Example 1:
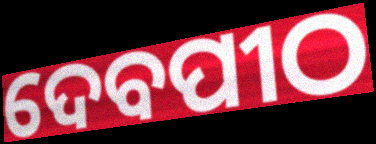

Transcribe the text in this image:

ଦେବପୀଠ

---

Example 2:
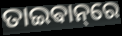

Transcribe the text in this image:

ତାଇଵାନ୍‌ରେ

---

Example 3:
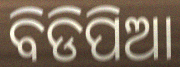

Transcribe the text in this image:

ବିଡିପିଆ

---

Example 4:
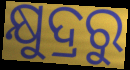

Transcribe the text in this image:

କ୍ଷୁଦ୍ରରୁ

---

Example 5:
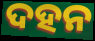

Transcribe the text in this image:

ଦହନ